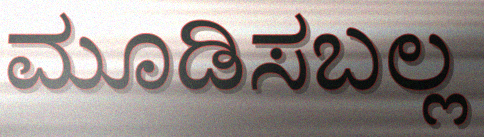
ಮೂಡಿಸಬಲ್ಲ